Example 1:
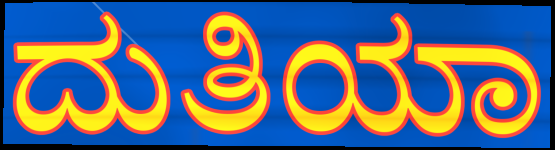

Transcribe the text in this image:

ದುತಿಯಾ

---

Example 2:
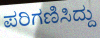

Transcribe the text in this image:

ಪರಿಗಣಿಸಿದ್ದು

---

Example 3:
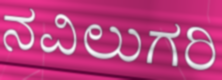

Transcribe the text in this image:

ನವಿಲುಗರಿ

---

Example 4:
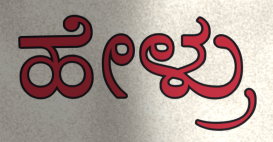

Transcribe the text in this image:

ಹೇಳ್ರು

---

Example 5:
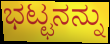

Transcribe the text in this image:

ಭಟ್ಟನನ್ನು